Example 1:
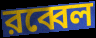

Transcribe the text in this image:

রব্বেল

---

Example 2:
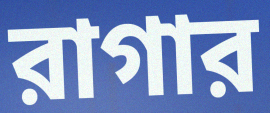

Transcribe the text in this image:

রাগার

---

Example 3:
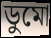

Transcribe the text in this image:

ডুমো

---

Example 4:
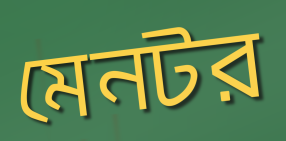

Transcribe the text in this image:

মেনটর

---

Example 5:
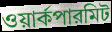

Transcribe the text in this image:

ওয়ার্কপারমিট